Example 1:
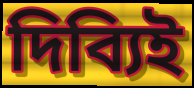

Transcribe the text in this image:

দিব্যিই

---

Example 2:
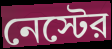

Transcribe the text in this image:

নেস্টের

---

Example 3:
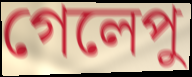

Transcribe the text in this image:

গেলেপু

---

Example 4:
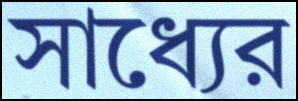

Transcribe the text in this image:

সাধ্যের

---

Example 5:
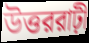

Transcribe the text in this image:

উত্তররাঢ়ী